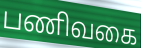
பணிவகை